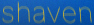
shaven